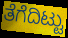
ತೆಗೆದಿಟ್ಟು